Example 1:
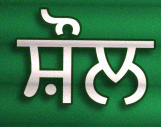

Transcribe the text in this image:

ਸ਼ੌਲ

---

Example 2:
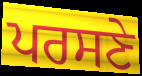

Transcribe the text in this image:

ਪਰਸਣੇ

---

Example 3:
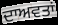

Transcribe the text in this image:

ਦਾਅਵਤਾਂ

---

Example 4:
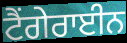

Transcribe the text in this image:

ਟੈਂਗੇਰਾਈਨ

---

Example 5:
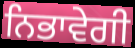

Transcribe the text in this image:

ਨਿਭਾਵੇਗੀ